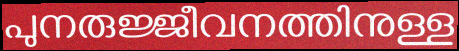
പുനരുജ്ജീവനത്തിനുള്ള